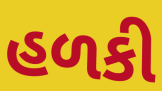
હળકી